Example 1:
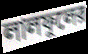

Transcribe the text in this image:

লালফুলের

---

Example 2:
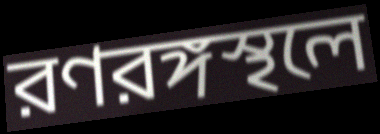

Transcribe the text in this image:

রণরঙ্গস্থলে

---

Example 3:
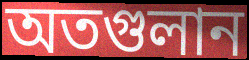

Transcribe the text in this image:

অতগুলান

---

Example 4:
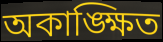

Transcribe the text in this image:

অকাঙ্ক্ষিত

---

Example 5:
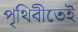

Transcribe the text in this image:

পৃথিবীতেই